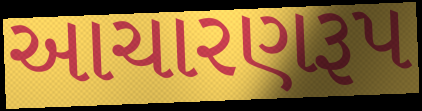
આચારણરૂપ